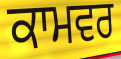
ਕਾਮਵਰ